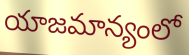
యాజమాన్యంలో